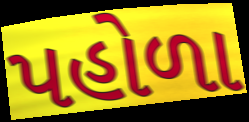
પહોળા